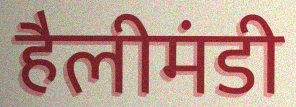
हैलीमंडी